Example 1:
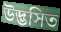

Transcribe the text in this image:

উদ্ভসিত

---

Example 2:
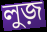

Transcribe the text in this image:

লুজ়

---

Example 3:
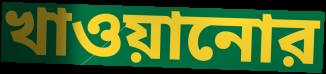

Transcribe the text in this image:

খাওয়ানোর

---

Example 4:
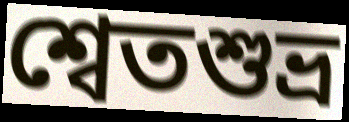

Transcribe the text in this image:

শ্বেতশুভ্র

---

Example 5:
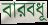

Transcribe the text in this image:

বারবধূ